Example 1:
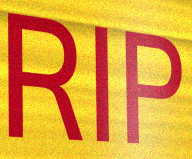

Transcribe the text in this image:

RIP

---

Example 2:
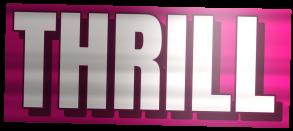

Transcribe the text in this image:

THRILL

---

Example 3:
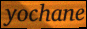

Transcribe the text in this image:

yochane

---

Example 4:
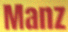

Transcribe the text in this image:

Manz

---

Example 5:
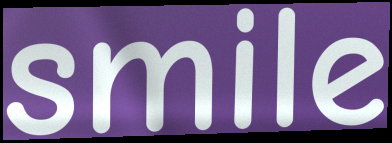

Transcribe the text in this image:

smile